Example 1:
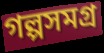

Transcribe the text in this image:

গল্পসমগ্র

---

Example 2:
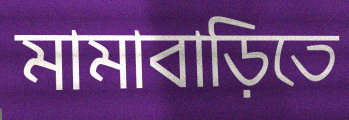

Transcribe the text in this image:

মামাবাড়িতে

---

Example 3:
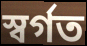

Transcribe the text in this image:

স্বর্গত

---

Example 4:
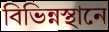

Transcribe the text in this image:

বিভিন্নস্থানে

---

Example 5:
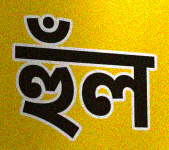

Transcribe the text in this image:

হুঁল